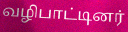
வழிபாட்டினர்